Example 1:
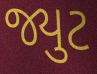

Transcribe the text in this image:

જ્યુટ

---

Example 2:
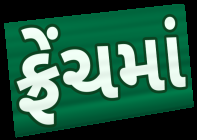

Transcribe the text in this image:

ફ્રેંચમાં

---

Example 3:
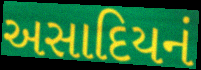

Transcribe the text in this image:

અસાદિયનં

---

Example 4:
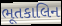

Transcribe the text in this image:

ભૂતકાલિન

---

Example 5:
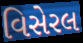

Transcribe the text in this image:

વિસેરલ